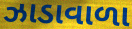
ઝાડાવાળા